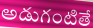
అడుగంటితే